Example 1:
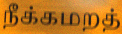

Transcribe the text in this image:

நீக்கமறத்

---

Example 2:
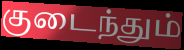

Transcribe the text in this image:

குடைந்தும்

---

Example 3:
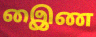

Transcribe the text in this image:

இைண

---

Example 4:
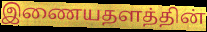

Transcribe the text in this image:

இணையதளத்தின்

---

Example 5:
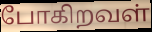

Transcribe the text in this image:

போகிறவள்